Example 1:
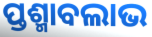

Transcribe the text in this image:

ପ୍ତଶ୍ମାବଲାଭ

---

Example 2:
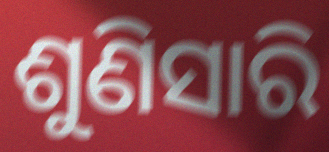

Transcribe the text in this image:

ଶୁଣିସାରି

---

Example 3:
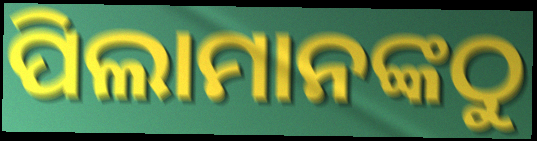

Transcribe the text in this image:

ପିଲାମାନଙ୍କଠୁ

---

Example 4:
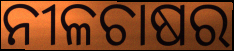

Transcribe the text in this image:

ନୀଳଚାଷର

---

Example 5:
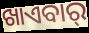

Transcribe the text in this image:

ଖାଏବାର୍